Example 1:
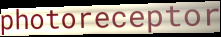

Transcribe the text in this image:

photoreceptor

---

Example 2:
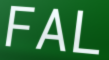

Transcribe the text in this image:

FAL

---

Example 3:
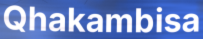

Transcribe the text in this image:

Qhakambisa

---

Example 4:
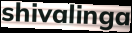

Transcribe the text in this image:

shivalinga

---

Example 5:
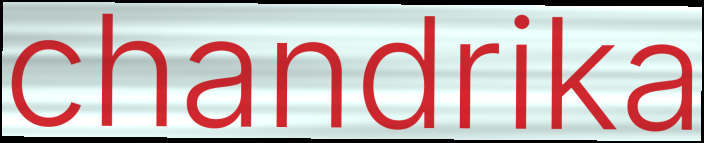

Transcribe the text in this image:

chandrika